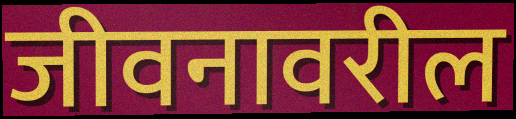
जीवनावरील